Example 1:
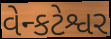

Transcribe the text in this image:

વેન્કટેશ્વર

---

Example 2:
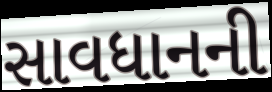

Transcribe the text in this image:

સાવધાનની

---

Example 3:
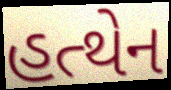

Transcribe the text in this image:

હત્થેન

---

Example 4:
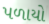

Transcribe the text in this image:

પળાયો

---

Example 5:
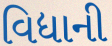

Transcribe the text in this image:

વિદ્યાની